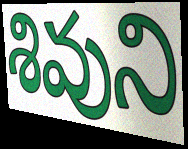
శివుని